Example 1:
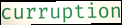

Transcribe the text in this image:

curruption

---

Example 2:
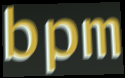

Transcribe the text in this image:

bpm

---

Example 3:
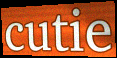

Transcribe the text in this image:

cutie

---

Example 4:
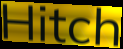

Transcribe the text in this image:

Hitch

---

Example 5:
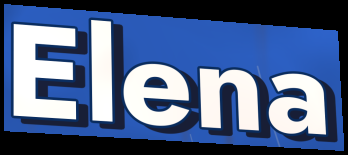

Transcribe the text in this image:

Elena